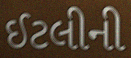
ઈટલીની